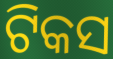
ଟିକସ